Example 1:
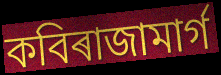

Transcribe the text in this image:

কবিৰাজামাৰ্গ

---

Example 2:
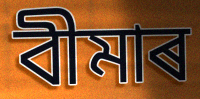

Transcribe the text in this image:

বীমাৰ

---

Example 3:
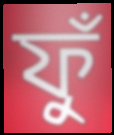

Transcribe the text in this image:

ফুঁ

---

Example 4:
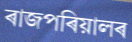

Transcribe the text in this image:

ৰাজপৰিয়ালৰ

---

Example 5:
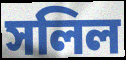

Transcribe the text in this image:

সলিল